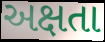
અક્ષતા